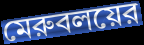
মেরুবলয়ের